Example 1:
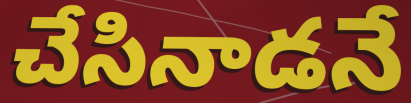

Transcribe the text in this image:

చేసినాడనే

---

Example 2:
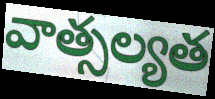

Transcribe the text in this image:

వాత్సల్యత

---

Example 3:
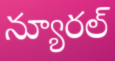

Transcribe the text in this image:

న్యూరల్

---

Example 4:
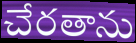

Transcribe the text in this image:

చేరతాను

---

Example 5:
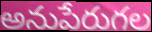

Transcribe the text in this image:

అనుపేరుగల